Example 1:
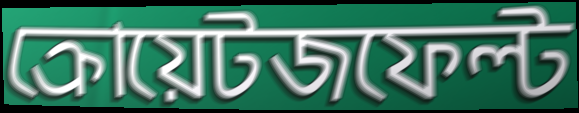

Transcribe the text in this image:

ক্রোয়েটজফেল্ট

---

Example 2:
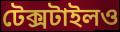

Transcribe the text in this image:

টেক্সটাইলও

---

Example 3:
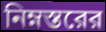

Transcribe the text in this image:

নিম্নস্তরের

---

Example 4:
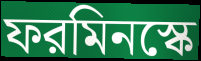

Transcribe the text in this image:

ফরমিনস্কে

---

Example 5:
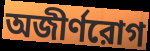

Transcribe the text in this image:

অজীর্ণরোগ